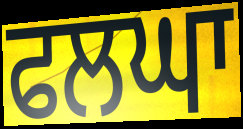
ਫਲਘਾ